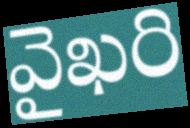
వైఖరి